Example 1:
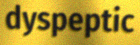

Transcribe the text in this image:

dyspeptic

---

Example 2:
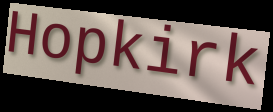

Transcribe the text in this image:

Hopkirk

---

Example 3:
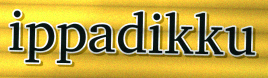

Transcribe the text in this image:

ippadikku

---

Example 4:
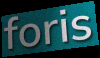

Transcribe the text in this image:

foris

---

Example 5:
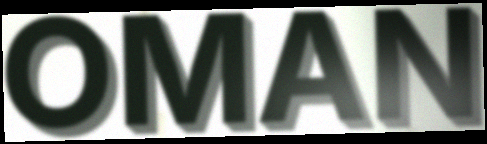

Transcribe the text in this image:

OMAN